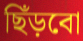
ছিঁড়বো